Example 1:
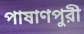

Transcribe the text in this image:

পাষাণপুরী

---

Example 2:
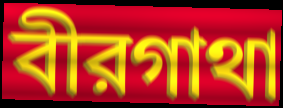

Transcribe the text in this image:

বীরগাথা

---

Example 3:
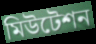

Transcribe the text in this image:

মিউটেশন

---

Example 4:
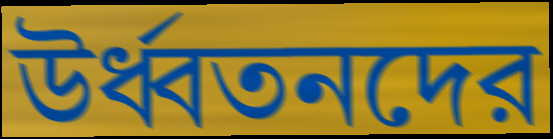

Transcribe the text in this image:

উর্ধ্বতনদের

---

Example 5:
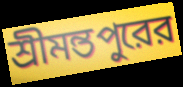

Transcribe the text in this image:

শ্রীমন্তপুরের